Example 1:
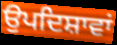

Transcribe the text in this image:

ਉਪਦਿਸ਼ਾਵਾਂ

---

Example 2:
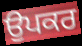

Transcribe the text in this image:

ਉਪਕਰ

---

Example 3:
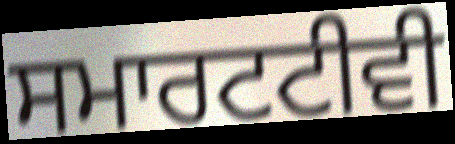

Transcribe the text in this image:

ਸਮਾਰਟਟੀਵੀ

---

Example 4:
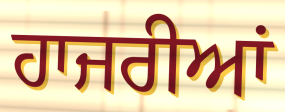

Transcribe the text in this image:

ਹਾਜਰੀਆਂ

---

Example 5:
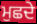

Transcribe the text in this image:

ਮੁਛਦੇ